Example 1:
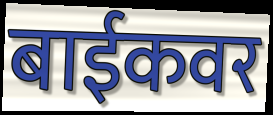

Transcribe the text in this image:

बाईकवर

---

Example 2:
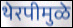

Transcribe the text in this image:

थेरपीमुळे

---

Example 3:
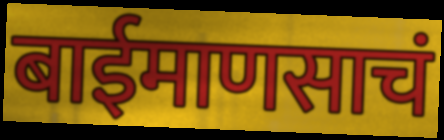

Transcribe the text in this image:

बाईमाणसाचं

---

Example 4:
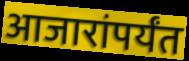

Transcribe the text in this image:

आजारांपर्यंत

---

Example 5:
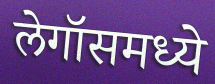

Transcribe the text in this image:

लेगॉसमध्ये